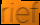
rief